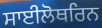
ਸਾਈਲੋਥਰਿਨ